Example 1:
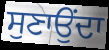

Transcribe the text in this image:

ਸੁਣਾਉਂਦਾ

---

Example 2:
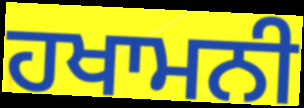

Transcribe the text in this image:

ਹਖਾਮਨੀ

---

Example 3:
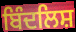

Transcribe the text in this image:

ਬਿੰਦਲਿਸ਼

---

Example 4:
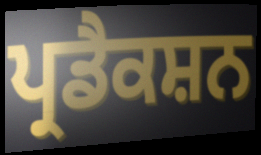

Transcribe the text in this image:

ਪ੍ਰਡੈਕਸ਼ਨ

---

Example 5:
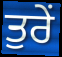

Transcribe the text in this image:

ਤੁਰੇਂ